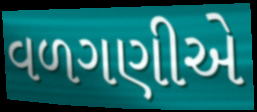
વળગણીએ